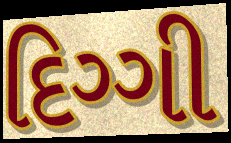
દિગ્ગી